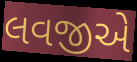
લવજીએ